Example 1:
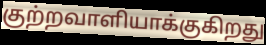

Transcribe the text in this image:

குற்றவாளியாக்குகிறது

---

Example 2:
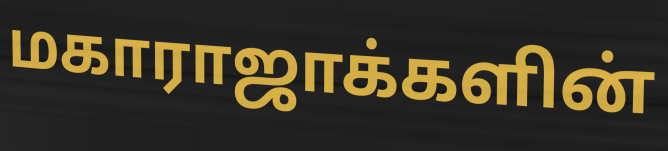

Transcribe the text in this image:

மகாராஜாக்களின்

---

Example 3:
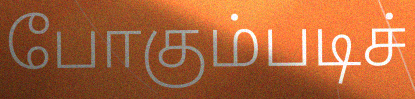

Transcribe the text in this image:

போகும்படிச்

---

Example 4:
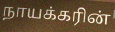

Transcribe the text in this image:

நாயக்கரின்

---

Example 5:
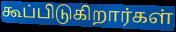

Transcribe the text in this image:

கூப்பிடுகிறார்கள்